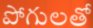
పోగులతో